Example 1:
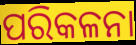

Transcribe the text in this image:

ପରିକଳନା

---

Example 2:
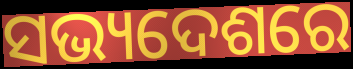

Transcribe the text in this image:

ସଭ୍ୟଦେଶରେ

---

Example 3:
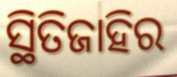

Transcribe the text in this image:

ସ୍ଥିତିଜାହିର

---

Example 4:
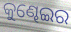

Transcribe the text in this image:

କୁଣ୍ଢେଇର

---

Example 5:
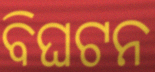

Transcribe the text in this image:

ବିଘଟନ